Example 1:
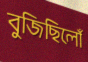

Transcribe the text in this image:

বুজিছিলোঁ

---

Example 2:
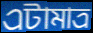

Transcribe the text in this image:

এটামাত্ৰ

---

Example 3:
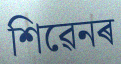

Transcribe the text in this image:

শিৱেনৰ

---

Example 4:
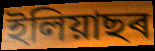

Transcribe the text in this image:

ইলিয়াছৰ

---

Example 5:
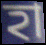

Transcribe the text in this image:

হা